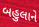
બહુલાને